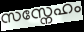
സസ്നേഹം